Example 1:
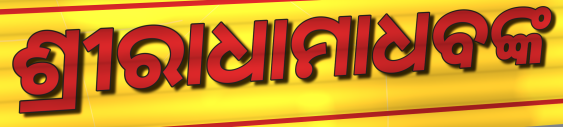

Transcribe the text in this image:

ଶ୍ରୀରାଧାମାଧବଙ୍କ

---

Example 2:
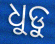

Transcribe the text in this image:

ଧୁଡୁ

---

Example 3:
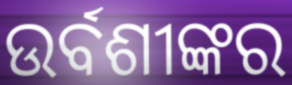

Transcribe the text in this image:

ଉର୍ବଶୀଙ୍କର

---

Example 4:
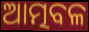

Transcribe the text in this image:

ଆତ୍ମବଳ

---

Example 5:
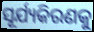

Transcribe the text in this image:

ସୂର୍ଯ୍ୟକିରଣକୁ